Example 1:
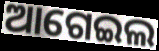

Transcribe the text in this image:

ଆଗେଇଲ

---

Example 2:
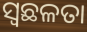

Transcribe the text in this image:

ସ୍ୱଛଳତା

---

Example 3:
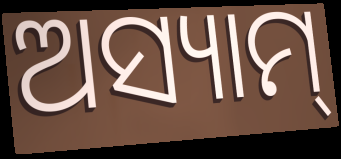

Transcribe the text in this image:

ଅସ୍ୟାମ୍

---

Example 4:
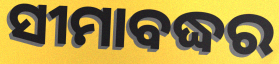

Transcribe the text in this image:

ସୀମାବଦ୍ଧର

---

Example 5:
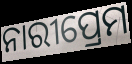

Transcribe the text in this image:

ନାରୀପ୍ରେମ